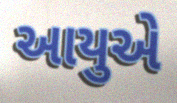
આયુએ